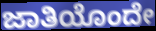
ಜಾತಿಯೊಂದೇ